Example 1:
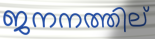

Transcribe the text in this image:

ജനനത്തില്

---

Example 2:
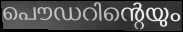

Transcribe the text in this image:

പൌഡറിന്റെയും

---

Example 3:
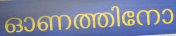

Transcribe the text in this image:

ഓണത്തിനോ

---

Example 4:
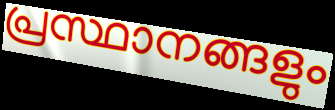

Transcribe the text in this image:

പ്രസ്ഥാനങ്ങളും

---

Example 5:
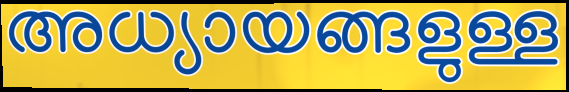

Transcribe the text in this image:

അധ്യായങ്ങളുള്ള